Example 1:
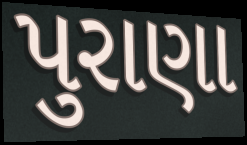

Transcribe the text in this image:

પુરાણા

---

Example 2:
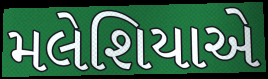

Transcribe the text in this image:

મલેશિયાએ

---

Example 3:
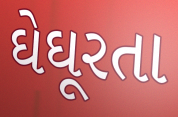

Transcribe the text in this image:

ઘેઘૂરતા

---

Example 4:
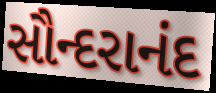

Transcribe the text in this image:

સૌન્દરાનંદ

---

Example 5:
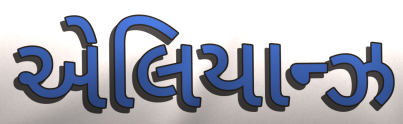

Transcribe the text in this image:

એલિયાન્ઝ